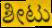
ಶೀಟು